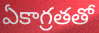
ఏకాగ్రతతో